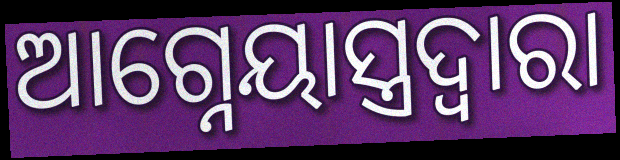
ଆଗ୍ନେୟାସ୍ତ୍ରଦ୍ୱାରା